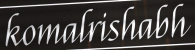
komalrishabh